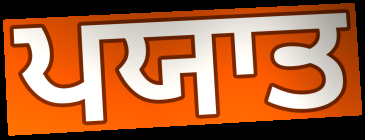
ਪਯਾਤ